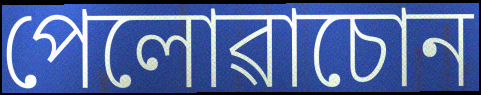
পেলোৱাচোন